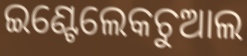
ଇଣ୍ଟେଲେକଚୁଆଲ